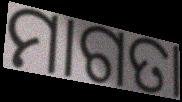
ମାଗତା